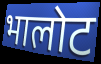
भालोट